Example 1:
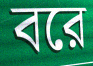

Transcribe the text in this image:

বরে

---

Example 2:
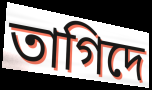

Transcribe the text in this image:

তাগিদে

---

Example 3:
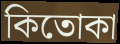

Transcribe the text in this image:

কিতোকা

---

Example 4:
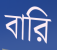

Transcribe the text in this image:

বারি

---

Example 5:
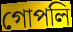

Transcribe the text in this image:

গোপলি